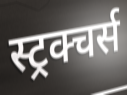
स्ट्रक्चर्स